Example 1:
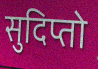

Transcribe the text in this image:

सुदिप्तो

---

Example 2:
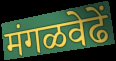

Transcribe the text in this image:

मंगळवेढें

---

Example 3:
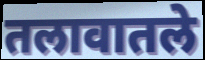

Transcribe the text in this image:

तलावातले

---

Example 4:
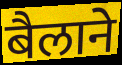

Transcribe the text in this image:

बैलाने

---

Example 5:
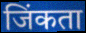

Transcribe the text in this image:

जिंकता